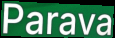
Parava